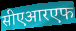
सीएआरएफ